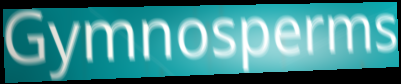
Gymnosperms